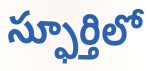
స్ఫూర్తిలో